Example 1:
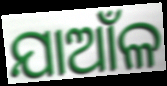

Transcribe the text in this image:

ଯାଆଁଳ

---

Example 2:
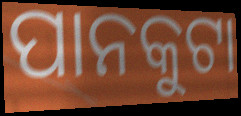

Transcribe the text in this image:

ପାନକୁଟା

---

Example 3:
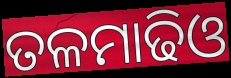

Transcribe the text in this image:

ତଳମାଢିଓ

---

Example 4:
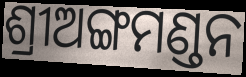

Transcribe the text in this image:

ଶ୍ରୀଅଙ୍ଗମଣ୍ଡନ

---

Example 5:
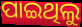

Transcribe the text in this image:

ପାଇଥିଲୁ